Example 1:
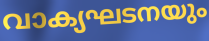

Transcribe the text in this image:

വാക്യഘടനയും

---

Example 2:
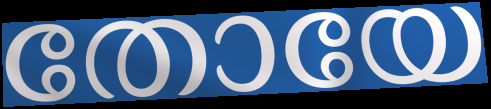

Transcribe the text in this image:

തോയേ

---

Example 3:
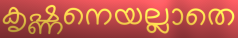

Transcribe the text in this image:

കൃഷ്ണനെയല്ലാതെ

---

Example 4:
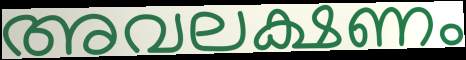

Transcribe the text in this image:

അവലക്ഷണം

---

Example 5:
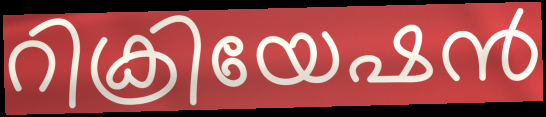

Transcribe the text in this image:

റിക്രിയേഷൻ